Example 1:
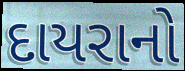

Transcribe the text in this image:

દાયરાનો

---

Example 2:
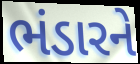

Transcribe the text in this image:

ભંડારને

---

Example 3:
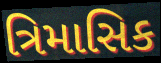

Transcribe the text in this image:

ત્રિમાસિક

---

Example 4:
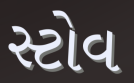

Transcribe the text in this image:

સ્ટોવ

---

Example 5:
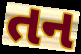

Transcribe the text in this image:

તન